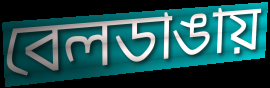
বেলডাঙায়